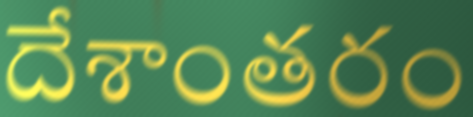
దేశాంతరం